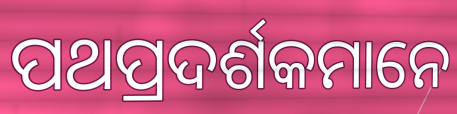
ପଥପ୍ରଦର୍ଶକମାନେ